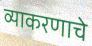
व्याकरणाचे